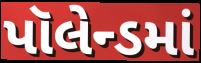
પૉલેન્ડમાં